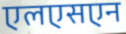
एलएसएन